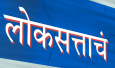
लोकसत्ताचं